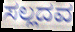
ಸಲ್ಲದವ